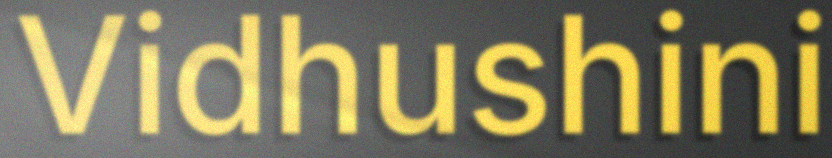
Vidhushini